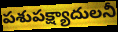
పశుపక్ష్యాదులనీ